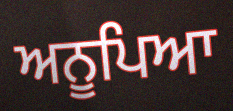
ਅਨੂਪਿਆ